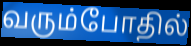
வரும்போதில்